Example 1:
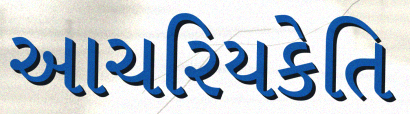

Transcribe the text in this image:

આચરિયકેતિ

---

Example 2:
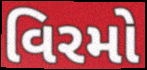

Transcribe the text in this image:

વિરમો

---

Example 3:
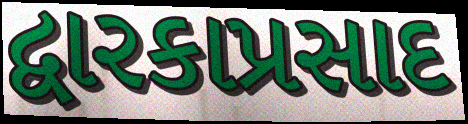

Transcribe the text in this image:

દ્વારકાપ્રસાદ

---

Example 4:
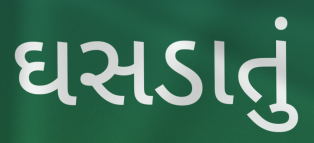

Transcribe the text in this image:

ઘસડાતું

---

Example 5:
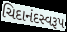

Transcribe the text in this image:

ચિદાનંદસ્વરૂપ